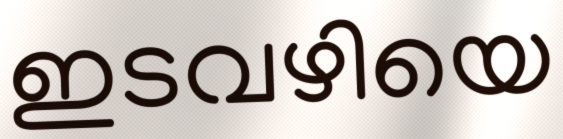
ഇടവഴിയെ